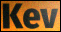
Kev